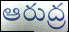
ఆరుద్ర